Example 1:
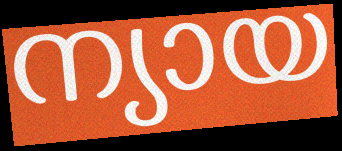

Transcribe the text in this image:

ന്യായ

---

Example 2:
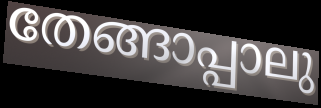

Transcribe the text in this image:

തേങ്ങാപ്പാലു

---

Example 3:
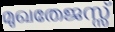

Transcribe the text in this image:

മുഖതേജസ്സ്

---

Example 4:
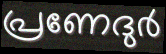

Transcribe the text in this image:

പ്രണേദുർ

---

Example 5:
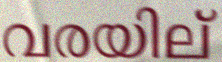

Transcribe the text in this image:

വരയില്